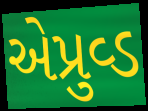
એપ્રુવ્ડ